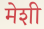
मेशी